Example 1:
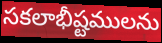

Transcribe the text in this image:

సకలాభీష్టములను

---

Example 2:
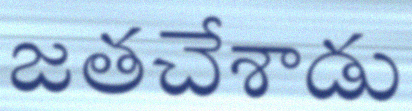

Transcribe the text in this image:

జతచేశాడు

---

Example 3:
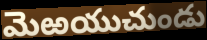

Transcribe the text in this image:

మెఱయుచుండు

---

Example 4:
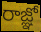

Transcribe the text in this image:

రాజ్ఞో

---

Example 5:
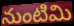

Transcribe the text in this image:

నుంటిమి